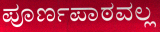
ಪೂರ್ಣಪಾಠವಲ್ಲ